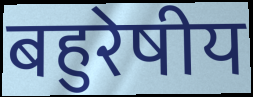
बहुरेषीय